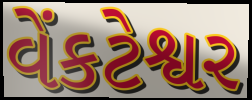
વેંકટેશ્વર